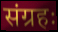
संग्रहः